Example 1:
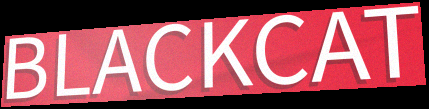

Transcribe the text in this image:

BLACKCAT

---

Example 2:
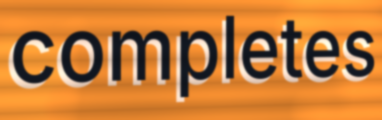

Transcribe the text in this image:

completes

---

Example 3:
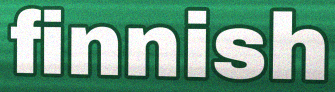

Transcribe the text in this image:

finnish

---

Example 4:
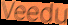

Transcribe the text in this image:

Veedu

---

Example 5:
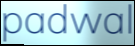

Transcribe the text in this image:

padwal